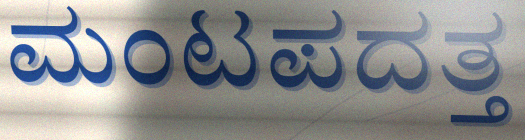
ಮಂಟಪದತ್ತ